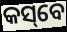
କସ୍‌ବେ